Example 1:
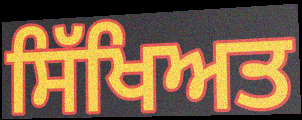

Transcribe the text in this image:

ਸਿੱਖਿਅਤ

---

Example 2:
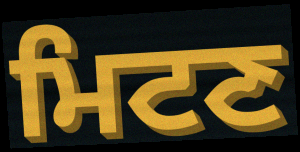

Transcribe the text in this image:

ਮਿਟਣ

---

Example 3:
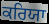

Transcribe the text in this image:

ਕਰਿਯਾ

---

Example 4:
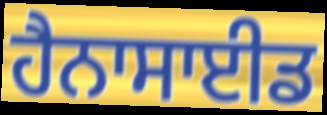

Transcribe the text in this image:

ਹੈਨਾਸਾਈਡ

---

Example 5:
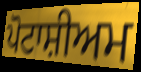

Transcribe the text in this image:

ਪੋਟਾਸ਼ੀਅਮ